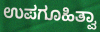
ಉಪಗೂಹಿತ್ವಾ